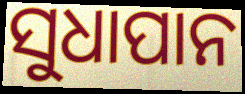
ସୁଧାପାନ